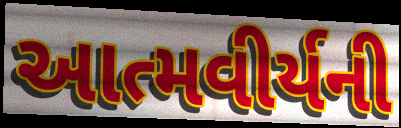
આત્મવીર્યની